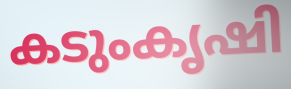
കടുംകൃഷി